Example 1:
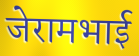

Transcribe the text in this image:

जेरामभाई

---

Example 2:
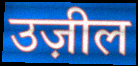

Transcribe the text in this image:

उज़ील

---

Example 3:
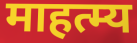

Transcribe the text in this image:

माहत्म्य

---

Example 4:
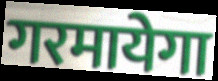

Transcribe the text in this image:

गरमायेगा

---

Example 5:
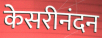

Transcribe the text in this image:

केसरीनंदन